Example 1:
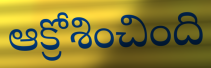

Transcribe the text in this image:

ఆక్రోశించింది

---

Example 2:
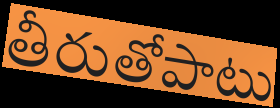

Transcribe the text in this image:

తీరుతోపాటు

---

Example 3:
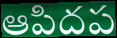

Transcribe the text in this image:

ఆపిదప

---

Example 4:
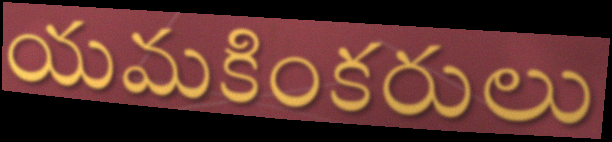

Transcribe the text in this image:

యమకింకరులు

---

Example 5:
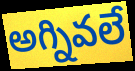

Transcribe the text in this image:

అగ్నివలే